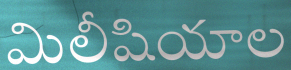
మిలీషియాల